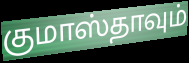
குமாஸ்தாவும்